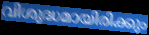
വിശുദ്ധമായിരിക്കും